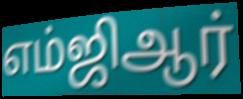
எம்ஜிஆர்